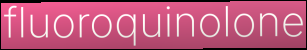
fluoroquinolone